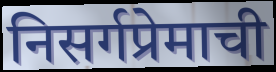
निसर्गप्रेमाची